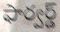
ఫార్వర్డ్